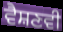
ਵੈਸ਼ਣਵੀ